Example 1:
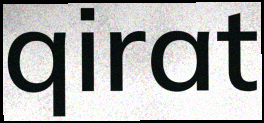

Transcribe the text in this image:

qirat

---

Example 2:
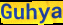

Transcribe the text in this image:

Guhya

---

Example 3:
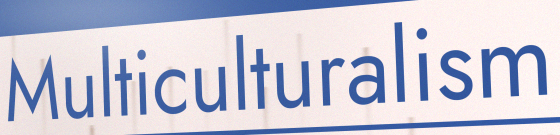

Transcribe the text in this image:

Multiculturalism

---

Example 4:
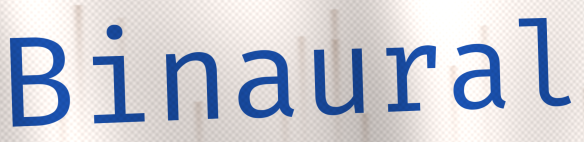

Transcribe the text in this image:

Binaural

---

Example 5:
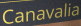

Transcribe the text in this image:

Canavalia